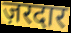
ज़रदार